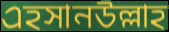
এহসানউল্লাহ